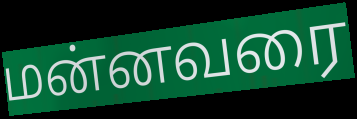
மன்னவரை